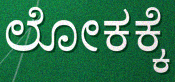
ಲೋಕಕ್ಕೆ